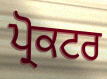
ਪ੍ਰੋਕਟਰ